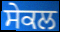
ਸੇਕਲ